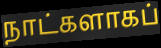
நாட்களாகப்